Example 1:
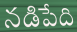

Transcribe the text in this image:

నడిపేది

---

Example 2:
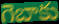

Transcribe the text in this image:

గెబాకు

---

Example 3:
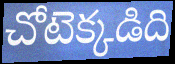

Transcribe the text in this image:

చోటెక్కడిది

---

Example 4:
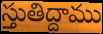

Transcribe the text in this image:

స్తుతిద్దాము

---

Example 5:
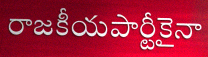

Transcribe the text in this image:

రాజకీయపార్టీకైనా